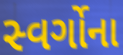
સ્વર્ગોના